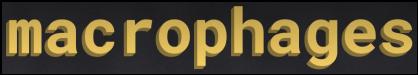
macrophages